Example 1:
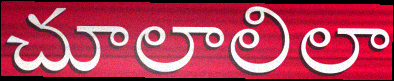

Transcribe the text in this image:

చూలాలిలా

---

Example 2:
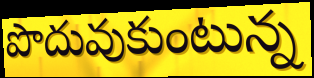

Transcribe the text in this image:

పొదువుకుంటున్న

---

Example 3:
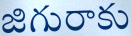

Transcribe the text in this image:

జిగురాకు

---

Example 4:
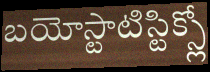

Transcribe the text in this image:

బయోస్టాటిస్టిక్స్లో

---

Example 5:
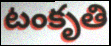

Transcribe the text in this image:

టంకృతి